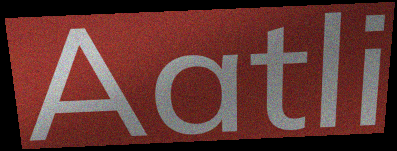
Aatli